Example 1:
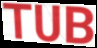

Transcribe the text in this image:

TUB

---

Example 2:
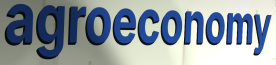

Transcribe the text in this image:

agroeconomy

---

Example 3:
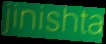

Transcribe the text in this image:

jinishta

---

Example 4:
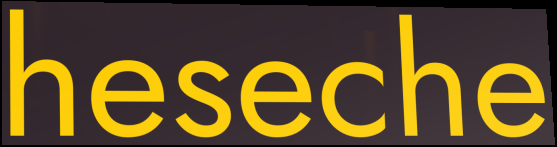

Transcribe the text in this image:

heseche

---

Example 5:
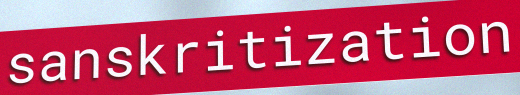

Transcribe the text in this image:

sanskritization